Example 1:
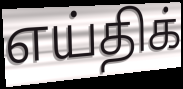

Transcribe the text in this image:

எய்திக்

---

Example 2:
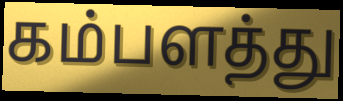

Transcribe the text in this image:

கம்பளத்து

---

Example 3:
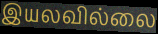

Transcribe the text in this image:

இயலவில்லை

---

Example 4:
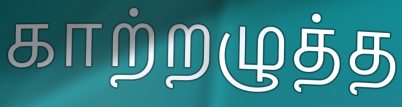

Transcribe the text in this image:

காற்றழுத்த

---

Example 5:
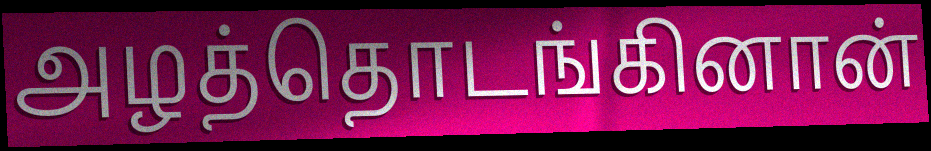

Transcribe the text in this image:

அழத்தொடங்கினான்